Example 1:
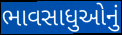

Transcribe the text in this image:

ભાવસાધુઓનું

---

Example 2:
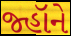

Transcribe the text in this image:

જ્હૉને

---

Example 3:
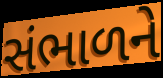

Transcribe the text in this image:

સંભાળને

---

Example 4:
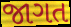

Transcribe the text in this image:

જાગત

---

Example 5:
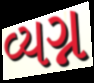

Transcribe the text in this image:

વ્યગ્ન